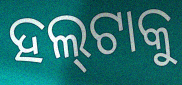
ହଲ୍‌ଟାକୁ